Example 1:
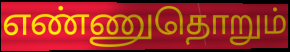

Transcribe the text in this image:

எண்ணுதொறும்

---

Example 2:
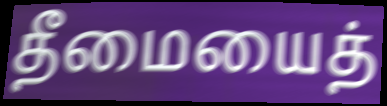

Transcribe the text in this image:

தீமையைத்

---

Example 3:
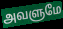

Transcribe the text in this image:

அவளுமே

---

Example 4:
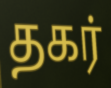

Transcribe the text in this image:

தகர்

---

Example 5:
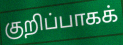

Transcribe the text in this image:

குறிப்பாகக்